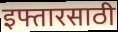
इफ्तारसाठी